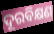
ଦୂରବିକ୍ଷଣ